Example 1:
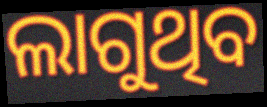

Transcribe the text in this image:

ଲାଗୁଥିବ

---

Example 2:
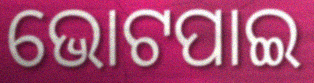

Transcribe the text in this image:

ଭୋଟପାଇ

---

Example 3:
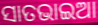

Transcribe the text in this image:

ସାତଭାଇଆ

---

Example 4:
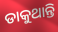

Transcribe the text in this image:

ଡାକୁଥାନ୍ତି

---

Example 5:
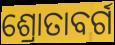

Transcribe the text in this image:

ଶ୍ରୋତାବର୍ଗ